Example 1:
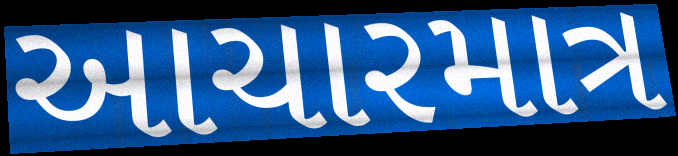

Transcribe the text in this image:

આચારમાત્ર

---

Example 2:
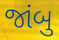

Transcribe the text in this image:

જાંબુ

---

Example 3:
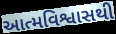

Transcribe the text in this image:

આત્મવિશ્વાસથી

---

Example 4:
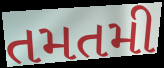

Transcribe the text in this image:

તમતમી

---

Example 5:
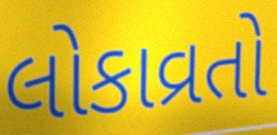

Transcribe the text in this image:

લોકાવ્રતો